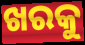
ଖରକୁ